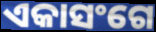
ଏକାସଂଗେ